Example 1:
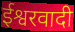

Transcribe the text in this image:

ईश्वरवादी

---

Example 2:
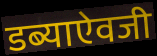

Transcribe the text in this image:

डब्याऐवजी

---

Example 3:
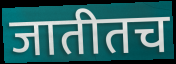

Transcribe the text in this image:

जातीतच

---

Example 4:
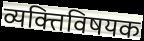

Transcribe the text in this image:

व्यक्तिविषयक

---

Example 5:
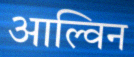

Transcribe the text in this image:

आल्विन